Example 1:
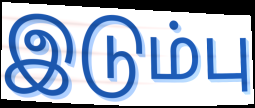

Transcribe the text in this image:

இடும்பு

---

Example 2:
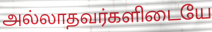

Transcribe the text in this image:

அல்லாதவர்களிடையே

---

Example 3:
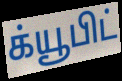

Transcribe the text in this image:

க்யூபிட்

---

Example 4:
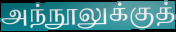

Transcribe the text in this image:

அந்நூலுக்குத்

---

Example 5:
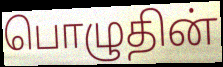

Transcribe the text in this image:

பொழுதின்